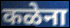
कळेना